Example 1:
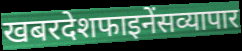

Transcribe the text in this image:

खबरदेशफाइनेंसव्यापार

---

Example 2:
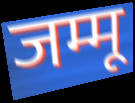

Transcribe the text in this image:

जम्मू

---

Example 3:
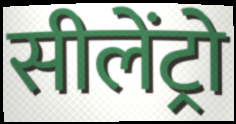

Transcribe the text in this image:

सीलेंट्रो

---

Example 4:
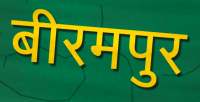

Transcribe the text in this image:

बीरमपुर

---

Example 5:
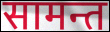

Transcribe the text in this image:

सामन्त